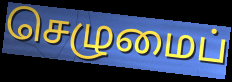
செழுமைப்